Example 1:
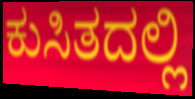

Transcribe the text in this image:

ಕುಸಿತದಲ್ಲಿ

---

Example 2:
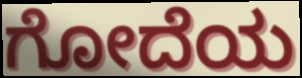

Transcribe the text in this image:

ಗೋದೆಯ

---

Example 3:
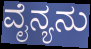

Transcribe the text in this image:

ವೈನ್ಯನು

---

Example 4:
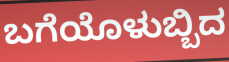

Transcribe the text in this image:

ಬಗೆಯೊಳುಬ್ಬಿದ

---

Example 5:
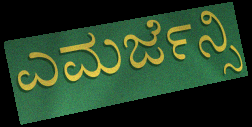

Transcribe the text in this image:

ಎಮರ್ಜೆನ್ಸಿ